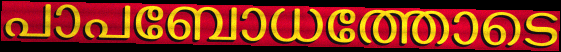
പാപബോധത്തോടെ